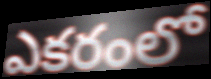
ఎకరంలో